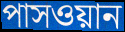
পাসওয়ান